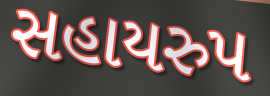
સહાયરુપ